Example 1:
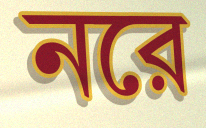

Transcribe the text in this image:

নরে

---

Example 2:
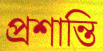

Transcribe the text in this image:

প্রশান্তি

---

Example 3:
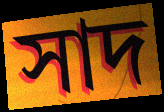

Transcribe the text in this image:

সাদ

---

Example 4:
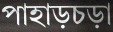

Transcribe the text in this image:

পাহাড়চড়া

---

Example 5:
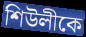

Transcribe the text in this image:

শিউলীকে